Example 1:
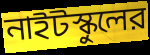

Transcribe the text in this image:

নাইটস্কুলের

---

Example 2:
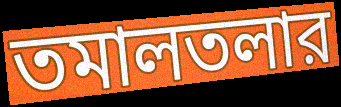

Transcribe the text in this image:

তমালতলার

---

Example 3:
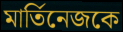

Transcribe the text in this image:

মার্তিনেজকে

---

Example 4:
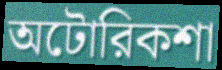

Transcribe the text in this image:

অটোরিকশা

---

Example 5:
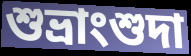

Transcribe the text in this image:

শুভ্রাংশুদা